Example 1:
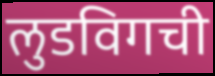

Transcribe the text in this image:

लुडविगची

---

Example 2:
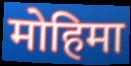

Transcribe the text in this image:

मोहिमा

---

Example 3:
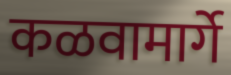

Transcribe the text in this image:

कळवामार्गे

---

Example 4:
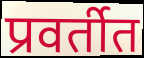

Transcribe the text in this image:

प्रवर्तीत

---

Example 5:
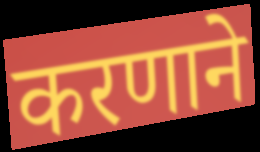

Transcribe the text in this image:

करणाने